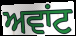
ਅਵਾਂਟ